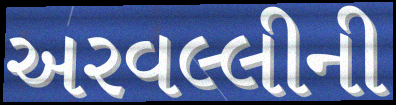
અરવલ્લીની